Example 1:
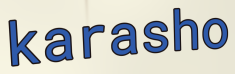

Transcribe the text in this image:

karasho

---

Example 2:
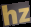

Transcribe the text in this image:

hz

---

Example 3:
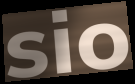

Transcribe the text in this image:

sio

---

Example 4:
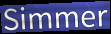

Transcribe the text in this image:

Simmer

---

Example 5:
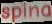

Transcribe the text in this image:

spina